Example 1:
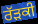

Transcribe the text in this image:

ਰੱੜਕੀ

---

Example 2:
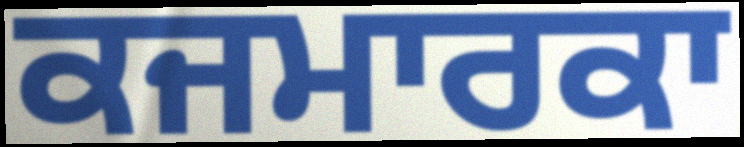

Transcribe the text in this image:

ਕਜਮਾਰਕਾ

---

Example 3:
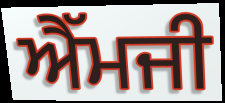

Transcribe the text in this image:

ਐੱਮਜੀ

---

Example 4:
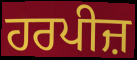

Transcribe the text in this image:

ਹਰਪੀਜ਼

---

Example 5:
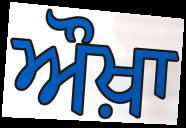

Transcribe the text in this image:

ਔਖ਼ਾ